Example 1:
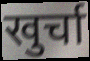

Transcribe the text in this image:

खुर्चा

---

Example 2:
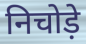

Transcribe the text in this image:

निचोड़े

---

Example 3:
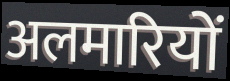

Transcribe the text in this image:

अलमारियों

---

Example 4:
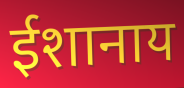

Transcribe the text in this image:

ईशानाय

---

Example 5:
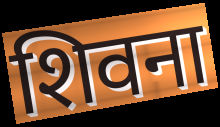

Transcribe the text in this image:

शिवना